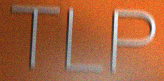
TLP